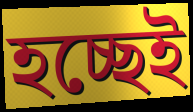
হচ্ছেই